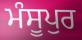
ਮੰਸੂਪੁਰ